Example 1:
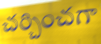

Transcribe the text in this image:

చర్చించగా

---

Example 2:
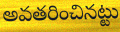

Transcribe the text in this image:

అవతరించినట్టు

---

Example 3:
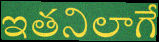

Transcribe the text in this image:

ఇతనిలాగే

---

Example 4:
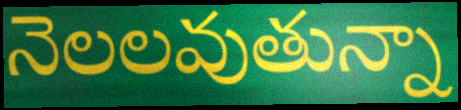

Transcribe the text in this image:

నెలలవుతున్నా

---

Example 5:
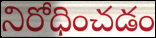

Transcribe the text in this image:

నిరోధించడం